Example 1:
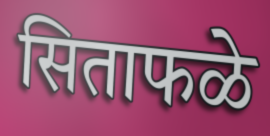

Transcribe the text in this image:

सिताफळे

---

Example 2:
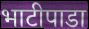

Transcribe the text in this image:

भाटीपाडा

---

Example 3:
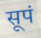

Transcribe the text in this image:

सूपं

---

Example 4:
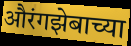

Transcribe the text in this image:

औरंगझेबाच्या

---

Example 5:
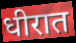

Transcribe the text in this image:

धीरात